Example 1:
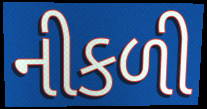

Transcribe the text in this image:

નીકળી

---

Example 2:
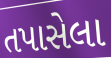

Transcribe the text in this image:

તપાસેલા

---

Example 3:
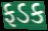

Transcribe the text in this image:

ફડક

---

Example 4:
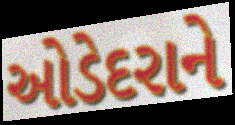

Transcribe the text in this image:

ઓડેદરાને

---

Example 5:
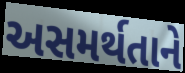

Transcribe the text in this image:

અસમર્થતાને